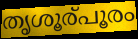
തൃശൂര്പൂരം